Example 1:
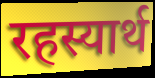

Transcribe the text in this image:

रहस्यार्थ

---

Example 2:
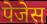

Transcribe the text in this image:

पेजेस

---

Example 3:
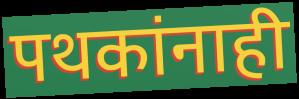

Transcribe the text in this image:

पथकांनाही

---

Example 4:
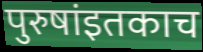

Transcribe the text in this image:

पुरुषांइतकाच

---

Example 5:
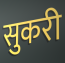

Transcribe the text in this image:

सुकरी